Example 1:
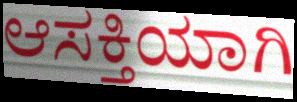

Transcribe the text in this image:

ಆಸಕ್ತಿಯಾಗಿ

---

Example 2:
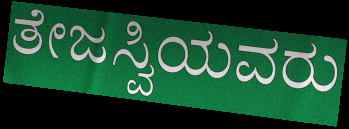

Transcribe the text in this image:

ತೇಜಸ್ವಿಯವರು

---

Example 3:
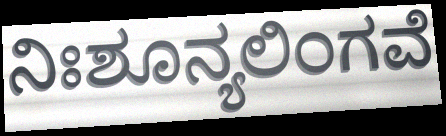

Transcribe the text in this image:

ನಿಃಶೂನ್ಯಲಿಂಗವೆ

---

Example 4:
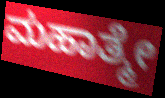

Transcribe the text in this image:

ಮಹಾತ್ಮೇ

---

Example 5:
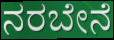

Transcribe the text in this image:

ನರಬೇನೆ